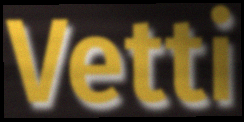
Vetti